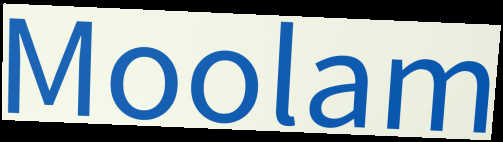
Moolam